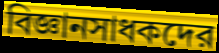
বিজ্ঞানসাধকদের